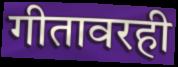
गीतावरही